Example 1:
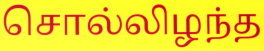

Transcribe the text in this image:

சொல்லிழந்த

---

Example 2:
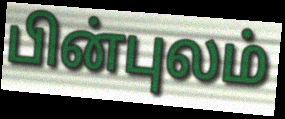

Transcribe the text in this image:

பின்புலம்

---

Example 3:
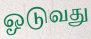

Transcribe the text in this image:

ஓடுவது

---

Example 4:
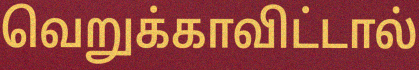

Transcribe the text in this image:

வெறுக்காவிட்டால்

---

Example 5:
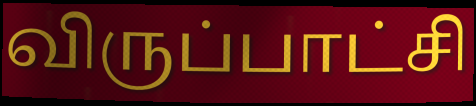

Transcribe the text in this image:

விருப்பாட்சி